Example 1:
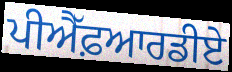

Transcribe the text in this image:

ਪੀਐੱਫ਼ਆਰਡੀਏ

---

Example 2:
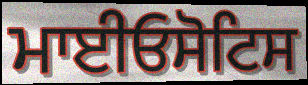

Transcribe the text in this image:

ਮਾਈਓਸੋਟਿਸ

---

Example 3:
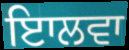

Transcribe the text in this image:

ਇਾਲਵਾ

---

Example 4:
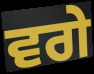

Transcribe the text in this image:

ਵਗੇ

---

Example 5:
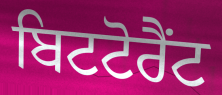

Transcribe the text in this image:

ਬਿਟਟੋਰੈਂਟ